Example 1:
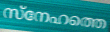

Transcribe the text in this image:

സ്നേഹത്തെ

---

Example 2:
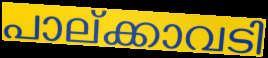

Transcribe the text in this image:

പാല്ക്കാവടി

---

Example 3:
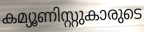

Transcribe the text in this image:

കമ്യൂണിസ്റ്റുകാരുടെ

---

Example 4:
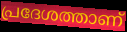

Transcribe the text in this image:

പ്രദേശത്താണ്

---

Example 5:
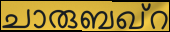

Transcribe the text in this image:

ചാരുബഖ്റ